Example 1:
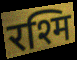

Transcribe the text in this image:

रश्मि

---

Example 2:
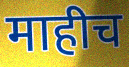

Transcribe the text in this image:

माहीच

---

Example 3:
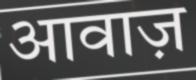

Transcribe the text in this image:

आवाज़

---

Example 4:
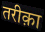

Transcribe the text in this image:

तरीक़ा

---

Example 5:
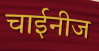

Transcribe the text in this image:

चाईनीज